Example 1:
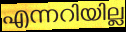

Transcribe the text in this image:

എന്നറിയില്ല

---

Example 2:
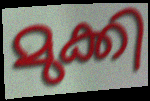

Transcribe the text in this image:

മുക്കി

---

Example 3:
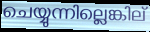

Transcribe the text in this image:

ചെയ്യുന്നില്ലെങ്കില്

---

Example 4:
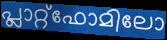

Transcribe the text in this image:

പ്ലാറ്റ്ഫോമിലോ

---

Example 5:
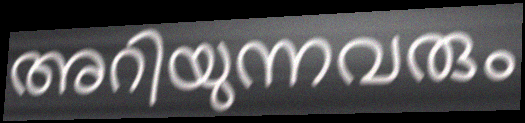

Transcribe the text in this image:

അറിയുന്നവരും